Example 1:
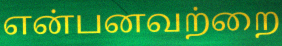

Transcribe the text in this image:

என்பனவற்றை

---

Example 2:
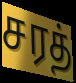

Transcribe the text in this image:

சரத்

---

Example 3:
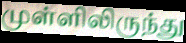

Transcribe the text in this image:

முள்ளிலிருந்து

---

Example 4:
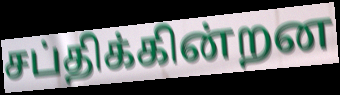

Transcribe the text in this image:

சப்திக்கின்றன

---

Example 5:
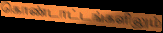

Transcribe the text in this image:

கொண்டாட்டங்களிலும்